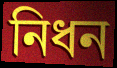
নিধন